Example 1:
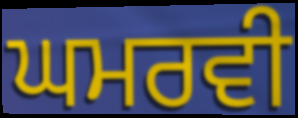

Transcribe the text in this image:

ਘਮਰਵੀ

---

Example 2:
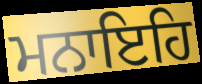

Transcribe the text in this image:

ਮਨਾਇਹਿ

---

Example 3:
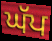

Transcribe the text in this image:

ਘੱਪ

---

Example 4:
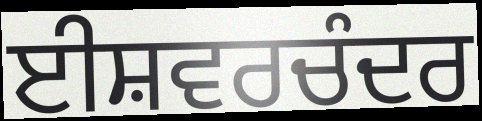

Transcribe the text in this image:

ਈਸ਼ਵਰਚੰਦਰ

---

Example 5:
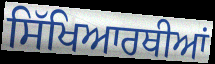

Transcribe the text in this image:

ਸਿੱਖਿਆਰਥੀਆਂ